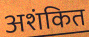
अशंकित